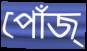
পোঁজ্